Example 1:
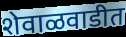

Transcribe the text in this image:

शेवाळवाडीत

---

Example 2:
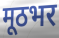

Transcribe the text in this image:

मूठभर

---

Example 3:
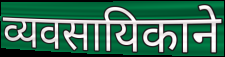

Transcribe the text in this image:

व्यवसायिकाने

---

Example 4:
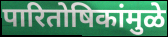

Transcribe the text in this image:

पारितोषिकांमुळे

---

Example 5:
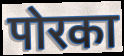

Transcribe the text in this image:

पोरका